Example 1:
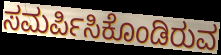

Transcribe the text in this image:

ಸಮರ್ಪಿಸಿಕೊಂಡಿರುವ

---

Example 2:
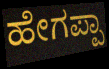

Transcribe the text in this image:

ಹೇಗಪ್ಪಾ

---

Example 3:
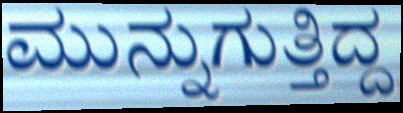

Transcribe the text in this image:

ಮುನ್ನುಗುತ್ತಿದ್ದ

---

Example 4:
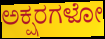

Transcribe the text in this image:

ಅಕ್ಷರಗಳೋ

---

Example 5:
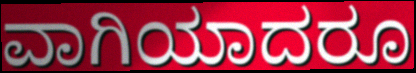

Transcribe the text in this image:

ವಾಗಿಯಾದರೂ